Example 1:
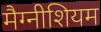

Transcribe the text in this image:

मैग्नीशियम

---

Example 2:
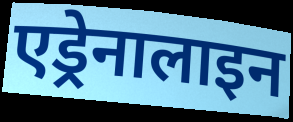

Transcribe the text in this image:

एड्रेनालाइन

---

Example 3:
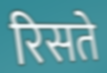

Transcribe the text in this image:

रिसते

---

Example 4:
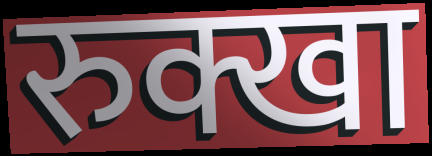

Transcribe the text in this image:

रुक्खा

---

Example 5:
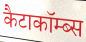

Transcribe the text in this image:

कैटाकॉम्ब्स